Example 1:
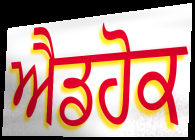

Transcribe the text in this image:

ਐਡਹੋਕ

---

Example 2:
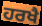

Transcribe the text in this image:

ਹਰਖੈ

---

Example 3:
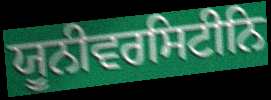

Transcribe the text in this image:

ਯੂਨੀਵਰਸਿਟੀਨਿ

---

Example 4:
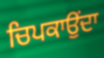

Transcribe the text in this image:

ਚਿਪਕਾਉਂਦਾ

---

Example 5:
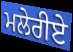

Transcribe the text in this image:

ਮਲੇਰੀਏ